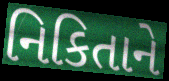
નિકિતાને